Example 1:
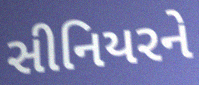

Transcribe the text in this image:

સીનિયરને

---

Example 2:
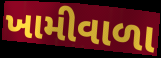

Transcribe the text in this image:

ખામીવાળા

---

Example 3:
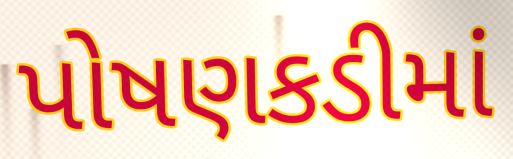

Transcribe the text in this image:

પોષણકડીમાં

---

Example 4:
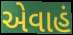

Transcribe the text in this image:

એવાહં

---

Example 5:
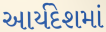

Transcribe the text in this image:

આર્યદેશમાં